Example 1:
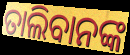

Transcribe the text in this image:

ତାଲିବାନଙ୍କ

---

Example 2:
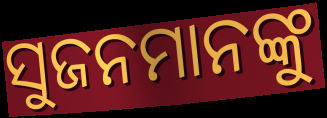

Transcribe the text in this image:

ସୁଜନମାନଙ୍କୁ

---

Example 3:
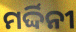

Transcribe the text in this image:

ମର୍ଦ୍ଦିନୀ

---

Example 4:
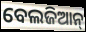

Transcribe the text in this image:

ବେଲଜିଆନ୍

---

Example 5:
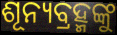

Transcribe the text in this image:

ଶୂନ୍ୟବ୍ରହ୍ମଙ୍କୁ